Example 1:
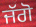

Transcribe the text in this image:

ਜੱਗੋ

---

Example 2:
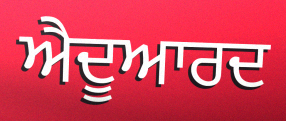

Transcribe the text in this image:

ਐਦੂਆਰਦ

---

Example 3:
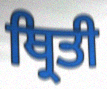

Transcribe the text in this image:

ਥ੍ਰਿਤੀ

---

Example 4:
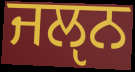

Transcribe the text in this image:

ਜਲੵਨ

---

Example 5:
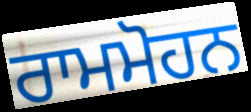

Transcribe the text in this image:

ਰਾਮਮੋਹਨ